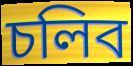
চলিব